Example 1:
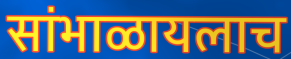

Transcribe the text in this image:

सांभाळायलाच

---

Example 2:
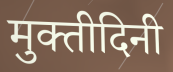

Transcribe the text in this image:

मुक्तीदिनी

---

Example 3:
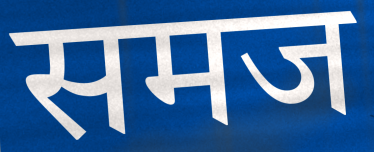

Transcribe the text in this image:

समज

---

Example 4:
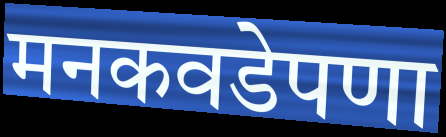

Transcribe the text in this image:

मनकवडेपणा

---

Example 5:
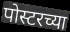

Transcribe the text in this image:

पोस्टरच्या